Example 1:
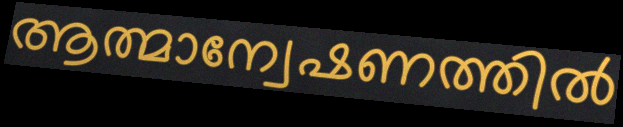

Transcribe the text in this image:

ആത്മാന്വേഷണത്തിൽ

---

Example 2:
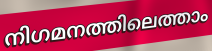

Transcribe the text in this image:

നിഗമനത്തിലെത്താം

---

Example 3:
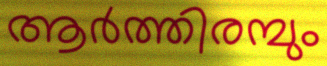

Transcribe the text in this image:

ആർത്തിരമ്പും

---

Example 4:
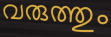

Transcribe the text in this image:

വരുത്തും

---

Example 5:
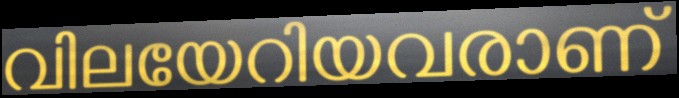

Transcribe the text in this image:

വിലയേറിയവരാണ്